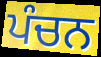
ਪੰਚਨ